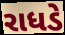
રાધડે